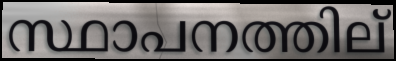
സ്ഥാപനത്തില്